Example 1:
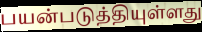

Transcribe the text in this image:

பயன்படுத்தியுள்ளது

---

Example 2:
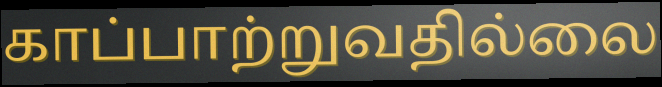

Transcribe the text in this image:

காப்பாற்றுவதில்லை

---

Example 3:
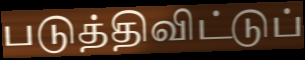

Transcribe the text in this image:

படுத்திவிட்டுப்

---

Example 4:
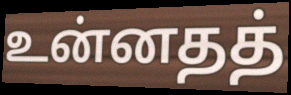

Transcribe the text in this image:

உன்னதத்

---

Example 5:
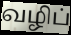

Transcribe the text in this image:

வழிப்